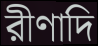
রীণাদি